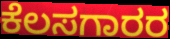
ಕೆಲಸಗಾರರ